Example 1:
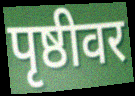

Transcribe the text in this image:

पृष्ठीवर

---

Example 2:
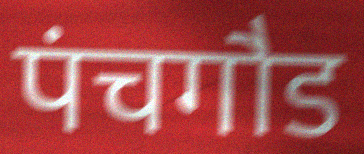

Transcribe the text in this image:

पंचगौड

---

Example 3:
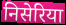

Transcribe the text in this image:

निसेरिया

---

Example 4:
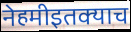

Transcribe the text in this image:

नेहमीइतक्याच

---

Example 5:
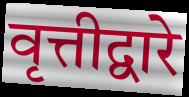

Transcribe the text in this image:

वृत्तीद्वारे